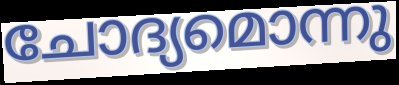
ചോദ്യമൊന്നു